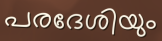
പരദേശിയും